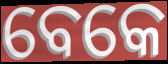
ବେକେ